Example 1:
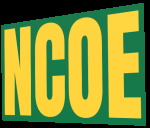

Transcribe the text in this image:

NCOE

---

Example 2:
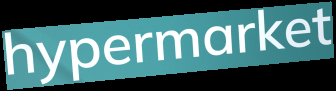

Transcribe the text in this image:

hypermarket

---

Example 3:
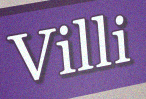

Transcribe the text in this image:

Villi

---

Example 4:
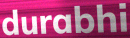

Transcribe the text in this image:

durabhi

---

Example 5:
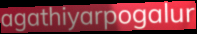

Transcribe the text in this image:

agathiyarpogalur